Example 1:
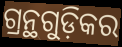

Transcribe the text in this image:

ଗ୍ରନ୍ଥଗୁଡ଼ିକର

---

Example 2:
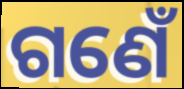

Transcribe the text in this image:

ଗଣେଁ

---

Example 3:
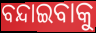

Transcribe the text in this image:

ବନ୍ଦାଇବାକୁ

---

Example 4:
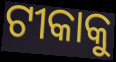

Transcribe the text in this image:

ଟୀକାକୁ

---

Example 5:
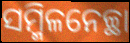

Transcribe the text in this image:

ସମ୍ମିଳନେଚ୍ଛା